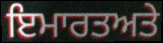
ਇਮਾਰਤਅਤੇ